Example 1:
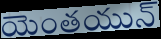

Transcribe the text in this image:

యెంతయున్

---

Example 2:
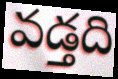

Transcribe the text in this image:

వడ్తది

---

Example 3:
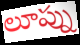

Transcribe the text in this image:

లూప్ను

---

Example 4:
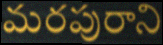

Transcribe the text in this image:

మరపురాని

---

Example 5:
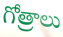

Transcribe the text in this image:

గోత్రాలు